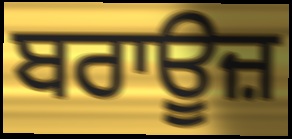
ਬਰਾਊਜ਼